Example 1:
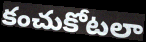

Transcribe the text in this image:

కంచుకోటలా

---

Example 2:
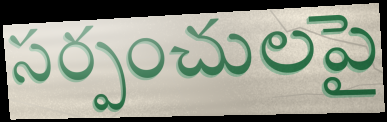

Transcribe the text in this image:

సర్పంచులపై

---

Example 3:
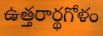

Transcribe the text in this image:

ఉత్తరార్థగోళం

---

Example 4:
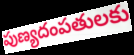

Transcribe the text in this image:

పుణ్యదంపతులకు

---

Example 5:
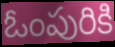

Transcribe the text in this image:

ఓంపురికి